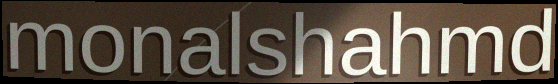
monalshahmd